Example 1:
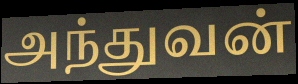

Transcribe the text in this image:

அந்துவன்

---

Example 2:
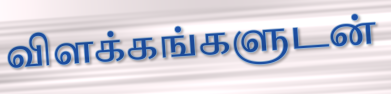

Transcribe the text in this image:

விளக்கங்களுடன்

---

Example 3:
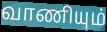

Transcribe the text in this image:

வாணியும்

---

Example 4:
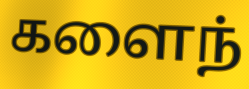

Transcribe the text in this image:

களைந்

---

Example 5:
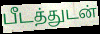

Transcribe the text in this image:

பீடத்துடன்